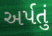
અર્પતું